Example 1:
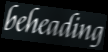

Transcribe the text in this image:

beheading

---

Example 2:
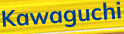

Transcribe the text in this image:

Kawaguchi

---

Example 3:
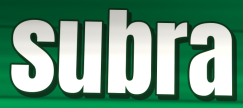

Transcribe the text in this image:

subra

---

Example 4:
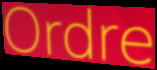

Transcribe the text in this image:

Ordre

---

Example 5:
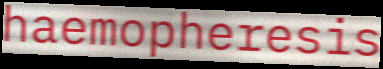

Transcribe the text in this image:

haemopheresis